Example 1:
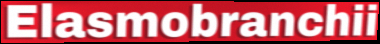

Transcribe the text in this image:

Elasmobranchii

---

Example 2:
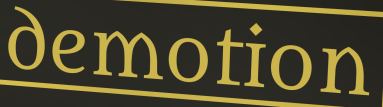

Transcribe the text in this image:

demotion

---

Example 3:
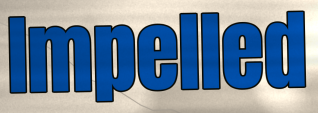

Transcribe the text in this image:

Impelled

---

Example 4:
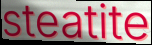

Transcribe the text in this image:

steatite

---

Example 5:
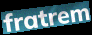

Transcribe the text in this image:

fratrem